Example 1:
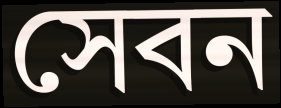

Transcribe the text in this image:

সেবন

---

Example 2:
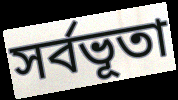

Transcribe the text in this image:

সর্বভূতা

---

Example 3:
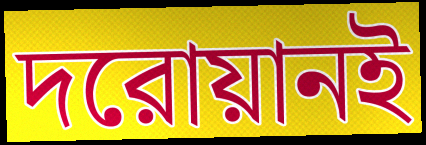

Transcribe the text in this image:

দরোয়ানই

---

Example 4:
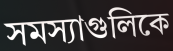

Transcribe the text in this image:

সমস্যাগুলিকে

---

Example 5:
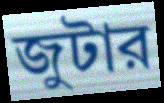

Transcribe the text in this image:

জুটার